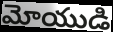
మోయుడి